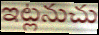
ఇట్లనుచు